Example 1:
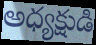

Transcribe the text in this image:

అధ్యక్షుడి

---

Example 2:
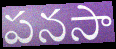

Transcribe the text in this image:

పనసా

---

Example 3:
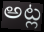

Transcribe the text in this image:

అట్ల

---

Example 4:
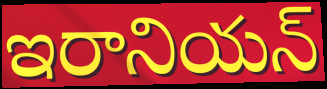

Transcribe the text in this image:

ఇరానియన్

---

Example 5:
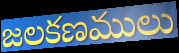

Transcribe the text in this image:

జలకణములు